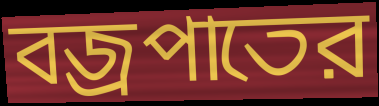
বজ্রপাতের